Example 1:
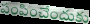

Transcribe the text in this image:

పంపించేందుకు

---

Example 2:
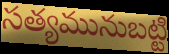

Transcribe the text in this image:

సత్యమునుబట్టి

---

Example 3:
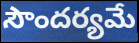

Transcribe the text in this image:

సౌందర్యమే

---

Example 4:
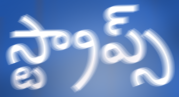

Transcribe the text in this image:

స్ట్రాప్స్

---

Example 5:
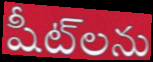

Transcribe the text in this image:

షీట్‌లను